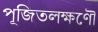
পূজিতলক্ষণৌ